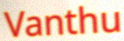
Vanthu